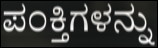
ಪಂಕ್ತಿಗಳನ್ನು